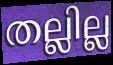
തല്ലില്ല